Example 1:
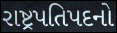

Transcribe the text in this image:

રાષ્ટ્રપતિપદનો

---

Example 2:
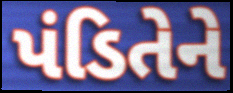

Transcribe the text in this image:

પંડિતેને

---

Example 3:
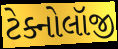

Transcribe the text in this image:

ટેક્નોલૉજી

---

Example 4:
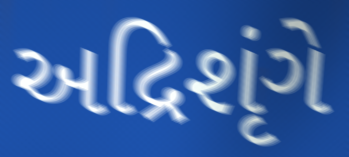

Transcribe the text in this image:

અદ્રિશૃંગે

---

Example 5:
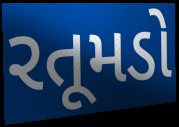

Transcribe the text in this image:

રતૂમડો